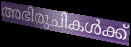
അഭിരുചികൾക്ക്